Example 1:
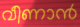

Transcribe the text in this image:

വീണാൻ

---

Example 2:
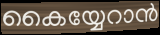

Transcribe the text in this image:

കൈയ്യേറാൻ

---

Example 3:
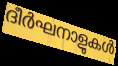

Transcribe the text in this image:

ദീർഘനാളുകൾ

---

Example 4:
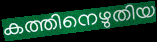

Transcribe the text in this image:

കത്തിനെഴുതിയ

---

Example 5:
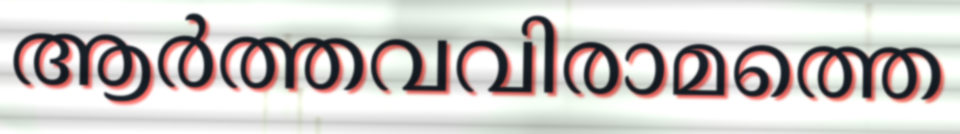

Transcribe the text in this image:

ആർത്തവവിരാമത്തെ